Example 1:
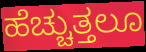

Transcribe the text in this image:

ಹೆಚ್ಚುತ್ತಲೂ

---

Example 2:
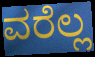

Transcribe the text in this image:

ವರೆಲ್ಲ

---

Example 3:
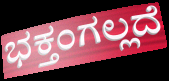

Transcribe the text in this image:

ಭಕ್ತಂಗಲ್ಲದೆ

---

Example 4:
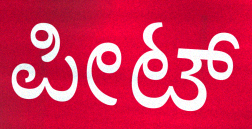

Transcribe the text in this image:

ಪೀಟ್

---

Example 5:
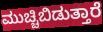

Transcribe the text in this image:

ಮುಚ್ಚಿಬಿಡುತ್ತಾರೆ